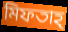
মিফতাহ্